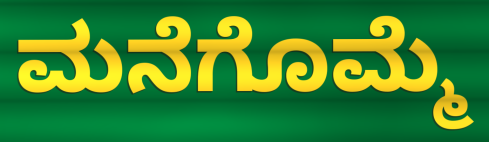
ಮನೆಗೊಮ್ಮೆ